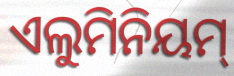
ଏଲୁମିନିୟମ୍